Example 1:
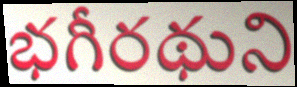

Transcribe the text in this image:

భగీరథుని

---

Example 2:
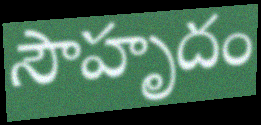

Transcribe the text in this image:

సౌహృదం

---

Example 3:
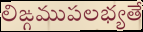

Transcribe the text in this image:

లిఙ్గముపలభ్యతే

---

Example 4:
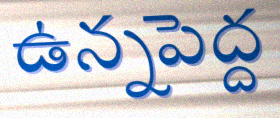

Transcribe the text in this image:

ఉన్నపెద్ద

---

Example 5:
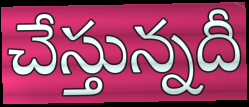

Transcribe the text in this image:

చేస్తున్నదీ